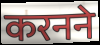
करनने